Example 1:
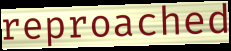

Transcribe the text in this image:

reproached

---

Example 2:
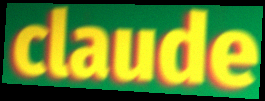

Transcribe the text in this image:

claude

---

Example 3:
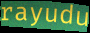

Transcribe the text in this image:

rayudu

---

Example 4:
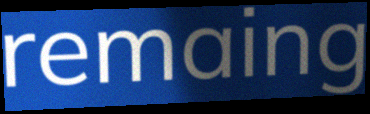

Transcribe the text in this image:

remaing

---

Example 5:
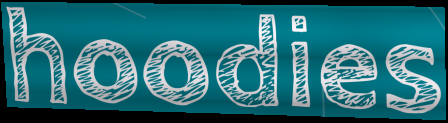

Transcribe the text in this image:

hoodies